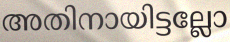
അതിനായിട്ടല്ലോ